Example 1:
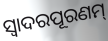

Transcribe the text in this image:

ସ୍ଵାଦରପୂରଣମ୍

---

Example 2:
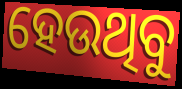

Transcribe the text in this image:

ହେଉଥିବୁ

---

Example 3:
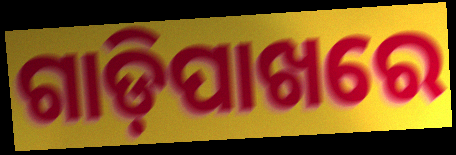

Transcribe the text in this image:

ଗାଡ଼ିପାଖରେ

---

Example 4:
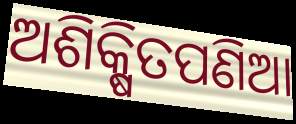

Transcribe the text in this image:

ଅଶିକ୍ଷିତପଣିଆ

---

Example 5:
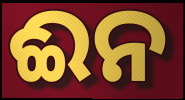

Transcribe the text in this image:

ଈନ